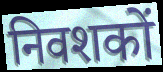
निवशकों